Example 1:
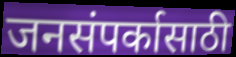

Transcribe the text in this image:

जनसंपर्कासाठी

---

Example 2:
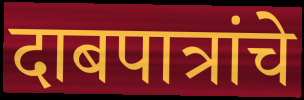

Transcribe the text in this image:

दाबपात्रांचे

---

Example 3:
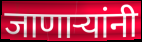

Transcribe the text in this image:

जाणाऱ्यांनी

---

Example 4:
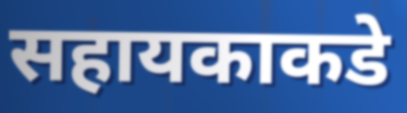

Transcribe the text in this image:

सहायकाकडे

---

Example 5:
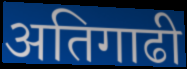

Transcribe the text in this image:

अतिगाढी